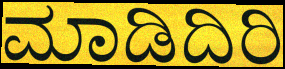
ಮಾಡಿದಿರಿ